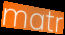
matr